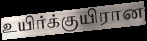
உயிர்க்குயிரான